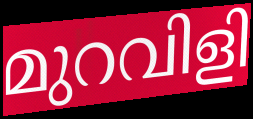
മുറവിളി